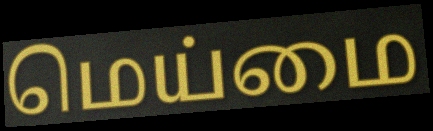
மெய்மை